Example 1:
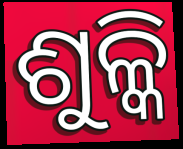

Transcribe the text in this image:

ଶୁଳ୍କି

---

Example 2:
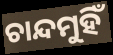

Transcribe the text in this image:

ଚାନ୍ଦମୁହିଁ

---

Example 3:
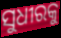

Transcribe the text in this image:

ସୁଧୀରକୁ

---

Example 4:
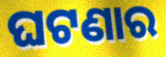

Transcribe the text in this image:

ଘଟଣାର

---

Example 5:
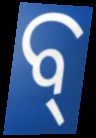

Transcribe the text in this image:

ବ୍